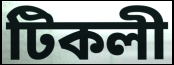
টিকলী